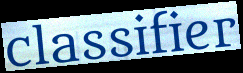
classifier